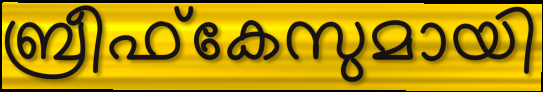
ബ്രീഫ്കേസുമായി